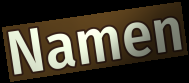
Namen